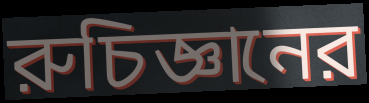
রুচিজ্ঞানের